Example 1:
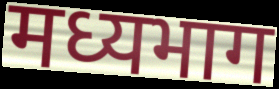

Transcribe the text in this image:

मध्यभाग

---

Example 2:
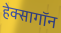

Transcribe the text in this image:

हेक्सागॉन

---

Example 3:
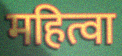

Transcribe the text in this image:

महित्वा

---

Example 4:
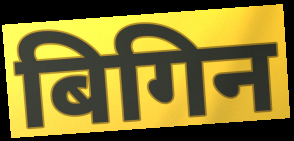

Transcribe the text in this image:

बिगिन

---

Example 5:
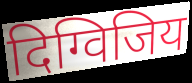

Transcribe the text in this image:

दिग्विजिय